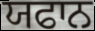
ਯਫਾਨ